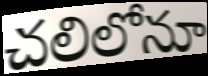
చలిలోనూ